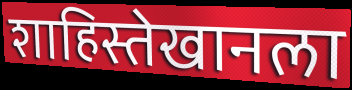
शाहिस्तेखानला